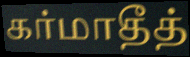
கர்மாதீத்